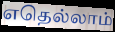
எதெல்லாம்